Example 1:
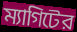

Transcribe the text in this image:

ম্যাগিটের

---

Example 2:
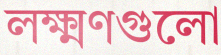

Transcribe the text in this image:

লক্ষ্মণগুলো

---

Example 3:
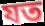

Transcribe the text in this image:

যত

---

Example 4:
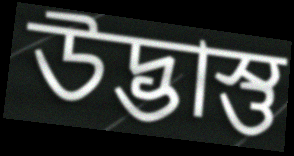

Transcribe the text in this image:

উদ্ভাস্তু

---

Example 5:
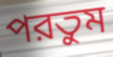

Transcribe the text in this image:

পরতুম